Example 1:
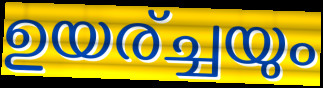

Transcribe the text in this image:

ഉയര്ച്ചയും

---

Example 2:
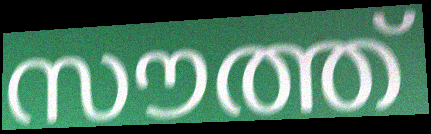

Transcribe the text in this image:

സൗത്ത്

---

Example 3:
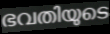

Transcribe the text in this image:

ഭവതിയുടെ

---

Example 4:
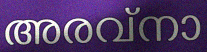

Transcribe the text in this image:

അരവ്നാ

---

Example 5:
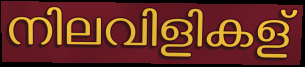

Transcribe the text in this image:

നിലവിളികള്